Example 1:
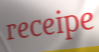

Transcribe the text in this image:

receipe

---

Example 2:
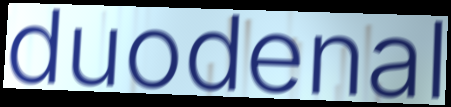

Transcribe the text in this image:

duodenal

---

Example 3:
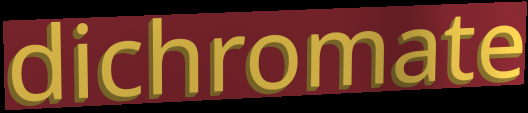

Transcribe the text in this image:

dichromate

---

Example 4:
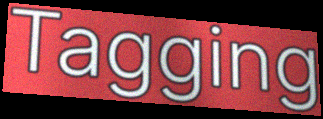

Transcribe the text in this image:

Tagging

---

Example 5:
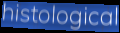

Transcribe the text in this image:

histological